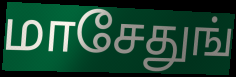
மாசேதுங்